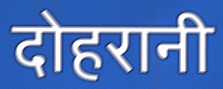
दोहरानी